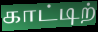
காட்டிற்